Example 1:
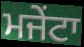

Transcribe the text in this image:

ਮਜੇਂਟਾ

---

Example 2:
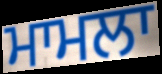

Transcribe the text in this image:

ਮਾਮਲਾ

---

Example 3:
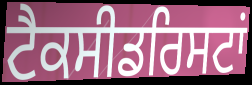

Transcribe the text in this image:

ਟੈਕਸੀਡਰਿਸਟਾਂ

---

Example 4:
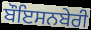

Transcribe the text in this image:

ਬੌਇਸਨਬੇਰੀ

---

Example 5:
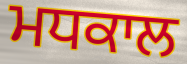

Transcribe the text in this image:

ਮਧਕਾਲ